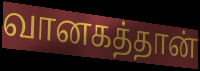
வானகத்தான்